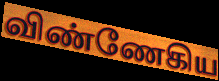
விண்ணேகிய